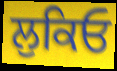
ਲੁਕਿਓ